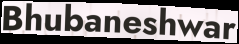
Bhubaneshwar